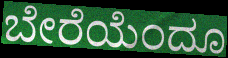
ಬೇರೆಯೆಂದೂ